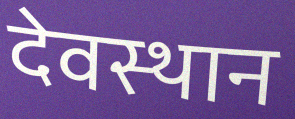
देवस्थान